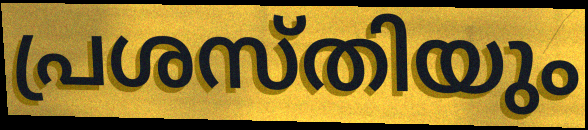
പ്രശസ്തിയും